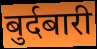
बुर्दबारी